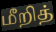
மீறித்